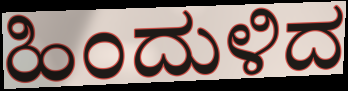
ಹಿಂದುಳಿದ